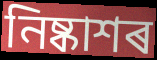
নিষ্কাশৰ